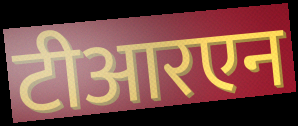
टीआरएन